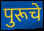
पुरूचे